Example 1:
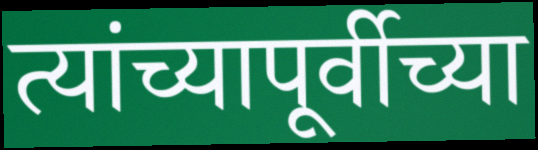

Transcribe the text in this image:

त्यांच्यापूर्वीच्या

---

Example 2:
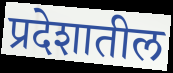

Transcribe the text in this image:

प्रदेशातील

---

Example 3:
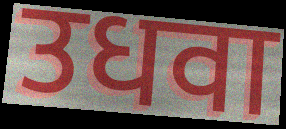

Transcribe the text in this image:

उधवा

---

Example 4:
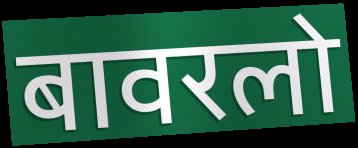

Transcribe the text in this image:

बावरलो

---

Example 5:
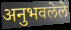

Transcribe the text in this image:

अनुभवलेले